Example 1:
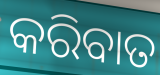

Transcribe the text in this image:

କରିବାତ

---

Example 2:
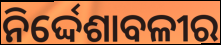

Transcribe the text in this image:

ନିର୍ଦ୍ଦେଶାବଳୀର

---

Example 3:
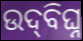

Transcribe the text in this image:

ଉଦ୍‍ବିଘ୍ନ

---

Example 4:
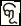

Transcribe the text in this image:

କୂ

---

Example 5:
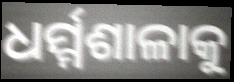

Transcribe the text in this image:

ଧର୍ମ୍ମଶାଳାକୁ